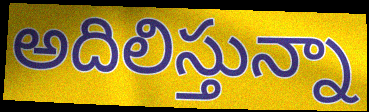
అదిలిస్తున్నా